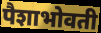
पैशाभोवती